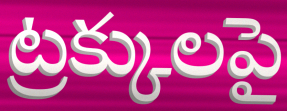
ట్రక్కులపై